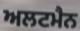
ਅਲਟਮੈਨ